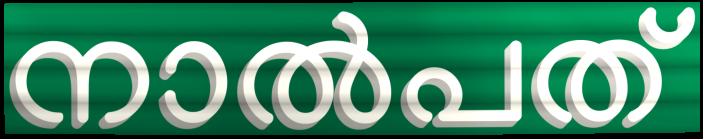
നാൽപത്